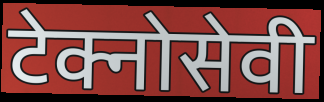
टेक्नोसेवी